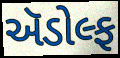
ઍડોલ્ફ